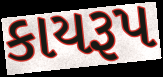
કાયરૂપ